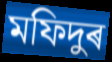
মফিদুৰ